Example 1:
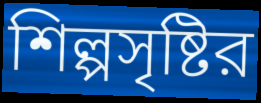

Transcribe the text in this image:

শিল্পসৃষ্টির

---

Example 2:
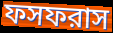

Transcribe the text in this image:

ফসফরাস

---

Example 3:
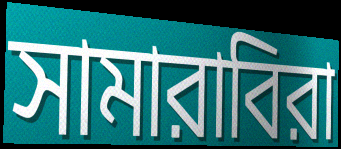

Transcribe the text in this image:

সামারাবিরা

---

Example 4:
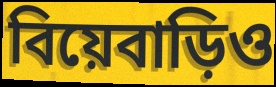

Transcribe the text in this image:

বিয়েবাড়িও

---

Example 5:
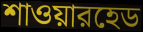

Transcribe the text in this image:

শাওয়ারহেড